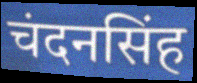
चंदनसिंह